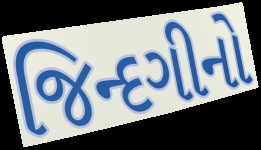
જિન્દગીનો